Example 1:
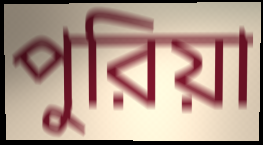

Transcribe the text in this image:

পুরিয়া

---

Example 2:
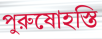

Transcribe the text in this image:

পুরুষোহস্তি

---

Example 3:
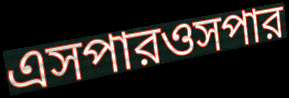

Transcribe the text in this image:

এসপারওসপার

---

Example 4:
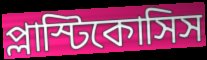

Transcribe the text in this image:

প্লাস্টিকোসিস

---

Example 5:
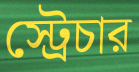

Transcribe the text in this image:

স্ট্রেচার